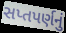
સપ્તપર્ણનું